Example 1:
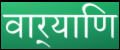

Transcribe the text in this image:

वार्याणि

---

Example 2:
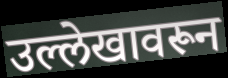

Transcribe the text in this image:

उल्लेखावरून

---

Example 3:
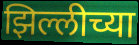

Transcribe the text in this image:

झिल्लीच्या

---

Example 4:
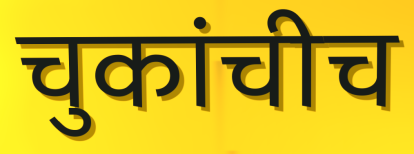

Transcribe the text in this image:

चुकांचीच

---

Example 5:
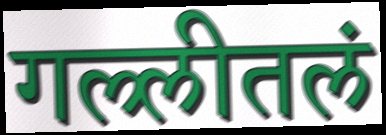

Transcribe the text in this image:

गल्लीतलं